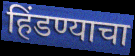
हिंडण्याचा